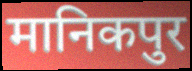
मानिकपुर